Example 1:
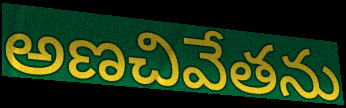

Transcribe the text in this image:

అణచివేతను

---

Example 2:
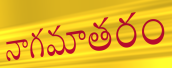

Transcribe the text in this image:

నాగమాతరం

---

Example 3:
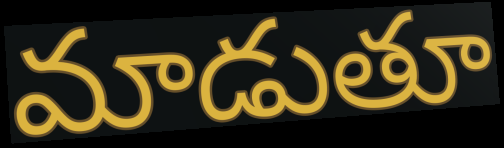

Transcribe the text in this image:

మాడుతూ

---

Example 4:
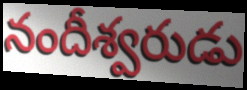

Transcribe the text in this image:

నందీశ్వరుడు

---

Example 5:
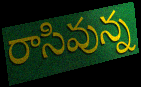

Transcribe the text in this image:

రాసివున్న